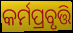
କର୍ମପ୍ରବୃତ୍ତି